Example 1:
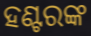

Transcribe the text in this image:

ହଣ୍ଟରଙ୍କ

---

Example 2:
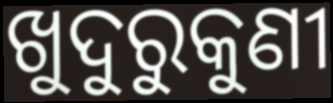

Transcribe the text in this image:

ଖୁଦୁରୁକୁଣୀ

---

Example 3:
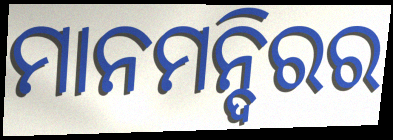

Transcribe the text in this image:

ମାନମନ୍ଦିରର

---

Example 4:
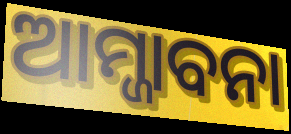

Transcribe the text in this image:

ଆମ୍ଜାବନା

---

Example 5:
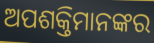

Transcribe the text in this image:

ଅପଶକ୍ତିମାନଙ୍କର